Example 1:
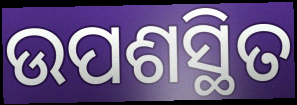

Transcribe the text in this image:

ଉପଶସ୍ଥିତ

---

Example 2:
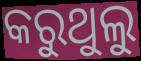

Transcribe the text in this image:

କରୁଥୁଲୁ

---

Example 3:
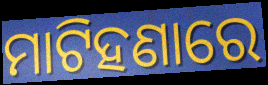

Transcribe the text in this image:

ମାଟିହଣାରେ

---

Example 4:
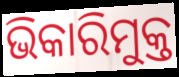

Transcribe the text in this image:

ଭିକାରିମୁକ୍ତ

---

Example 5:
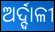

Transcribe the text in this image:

ଅର୍ଦ୍ଦାଳୀ